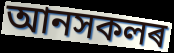
আনসকলৰ